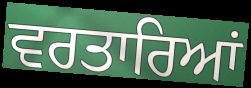
ਵਰਤਾਰਿਆਂ